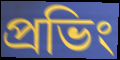
প্রভিং